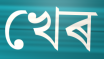
খেৰ